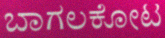
ಬಾಗಲಕೋಟ